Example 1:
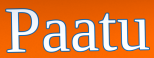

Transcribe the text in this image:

Paatu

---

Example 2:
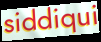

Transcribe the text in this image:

siddiqui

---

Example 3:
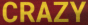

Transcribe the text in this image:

CRAZY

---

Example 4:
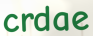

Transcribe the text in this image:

crdae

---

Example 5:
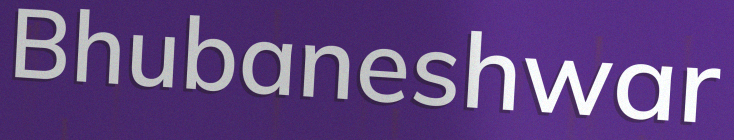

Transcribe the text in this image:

Bhubaneshwar